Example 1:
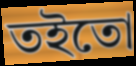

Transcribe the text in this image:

তইতো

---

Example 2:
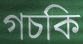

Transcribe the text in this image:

গচকি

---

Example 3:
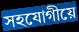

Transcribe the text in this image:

সহযোগীয়ে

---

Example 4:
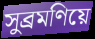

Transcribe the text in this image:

সুব্ৰমণিয়ে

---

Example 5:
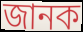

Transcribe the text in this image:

জানক